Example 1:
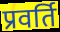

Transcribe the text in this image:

प्रवर्ति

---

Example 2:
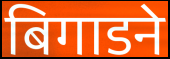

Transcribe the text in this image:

बिगाडने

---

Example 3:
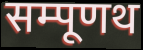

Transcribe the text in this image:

सम्पूणथ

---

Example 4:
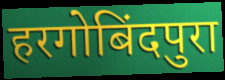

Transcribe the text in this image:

हरगोबिंदपुरा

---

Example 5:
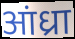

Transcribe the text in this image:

आंध्रा